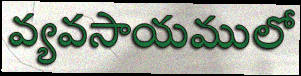
వ్యవసాయములో